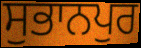
ਸੁਭਾਨਪੁਰ